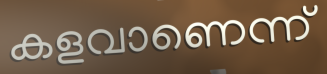
കളവാണെന്ന്